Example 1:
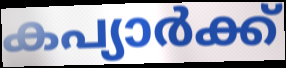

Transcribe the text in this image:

കപ്യാർക്ക്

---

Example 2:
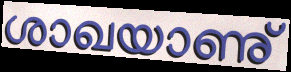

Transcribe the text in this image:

ശാഖയാണു്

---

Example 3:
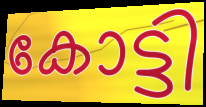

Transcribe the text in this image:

കോട്ടി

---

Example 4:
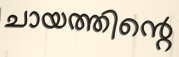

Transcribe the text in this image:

ചായത്തിന്റെ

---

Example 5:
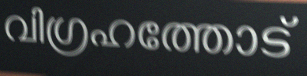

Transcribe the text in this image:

വിഗ്രഹത്തോട്